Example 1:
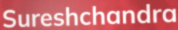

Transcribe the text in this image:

Sureshchandra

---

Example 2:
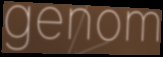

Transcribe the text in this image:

genom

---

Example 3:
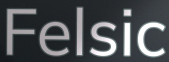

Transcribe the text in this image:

Felsic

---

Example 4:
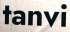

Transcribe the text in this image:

tanvi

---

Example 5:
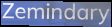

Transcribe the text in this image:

Zemindary